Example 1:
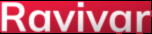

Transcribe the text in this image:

Ravivar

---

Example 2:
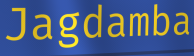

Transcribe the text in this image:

Jagdamba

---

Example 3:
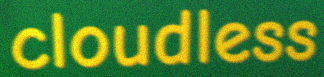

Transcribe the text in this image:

cloudless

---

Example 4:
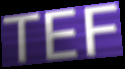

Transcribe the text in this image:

TEF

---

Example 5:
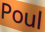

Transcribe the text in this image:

Poul